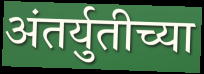
अंतर्युतीच्या